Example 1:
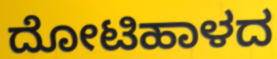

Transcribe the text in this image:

ದೋಟಿಹಾಳದ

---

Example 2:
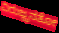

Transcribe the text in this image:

ವಿರುಜ್ಝನತೋ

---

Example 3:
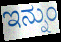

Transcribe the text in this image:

ಇನ್ನುಂ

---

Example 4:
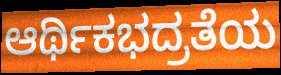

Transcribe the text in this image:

ಆರ್ಥಿಕಭದ್ರತೆಯ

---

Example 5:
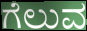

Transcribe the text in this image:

ಗೆಲುವ